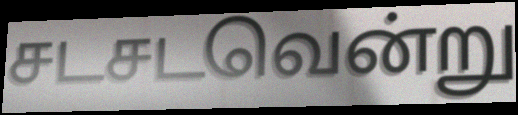
சடசடவென்று